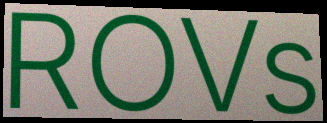
ROVs